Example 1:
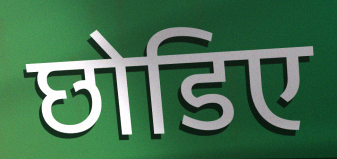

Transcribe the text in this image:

छोडिए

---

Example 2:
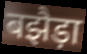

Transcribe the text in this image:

बझैड़ा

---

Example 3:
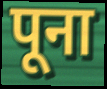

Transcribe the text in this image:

पूना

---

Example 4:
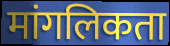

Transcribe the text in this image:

मांगलिकता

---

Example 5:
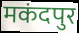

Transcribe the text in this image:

मकंदपुर